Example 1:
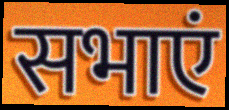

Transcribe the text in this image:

सभाएं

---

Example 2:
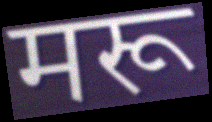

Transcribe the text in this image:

मरू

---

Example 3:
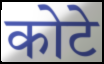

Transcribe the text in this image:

कोटे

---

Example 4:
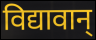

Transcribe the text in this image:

विद्यावान्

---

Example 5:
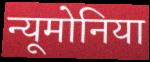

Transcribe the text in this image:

न्यूमोनिया